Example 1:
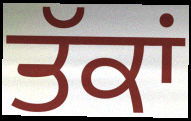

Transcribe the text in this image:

ਤੱਕਾਂ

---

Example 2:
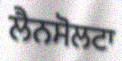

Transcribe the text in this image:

ਲੈਨਸੋਲਟਾ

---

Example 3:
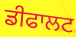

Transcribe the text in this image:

ਡੀਫਾਲਟ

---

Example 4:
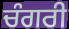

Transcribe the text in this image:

ਚੰਗਰੀ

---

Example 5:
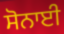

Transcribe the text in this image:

ਸੋਨਾਈ